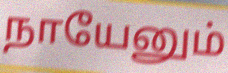
நாயேனும்